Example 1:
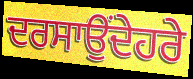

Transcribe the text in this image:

ਦਰਸਾਉਂਦੇਹਰੇ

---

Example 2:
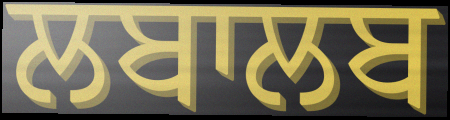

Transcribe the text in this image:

ਲਬਾਲਬ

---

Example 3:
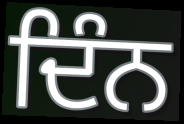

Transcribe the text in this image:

ਦਿੰਨ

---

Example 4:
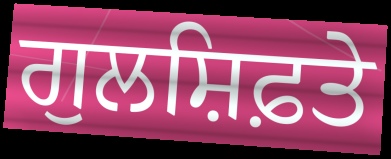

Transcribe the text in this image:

ਗੁਲਸ਼ਿਫ਼ਤੇ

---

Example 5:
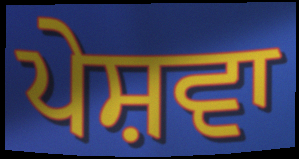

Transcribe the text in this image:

ਪੇਸ਼ਵਾ